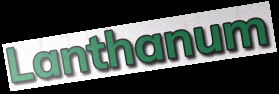
Lanthanum